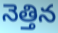
నెత్తిన